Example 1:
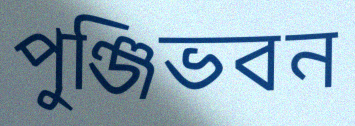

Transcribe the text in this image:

পুঞ্জিভবন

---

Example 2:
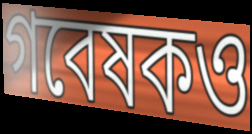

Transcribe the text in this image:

গবেষকও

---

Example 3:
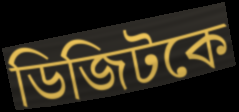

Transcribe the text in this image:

ডিজিটকে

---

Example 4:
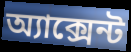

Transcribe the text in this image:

অ্যাক্সেন্ট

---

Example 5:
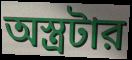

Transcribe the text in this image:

অস্ত্রটার